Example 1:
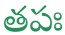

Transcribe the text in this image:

తపః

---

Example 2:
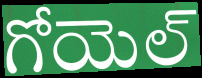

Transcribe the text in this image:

గోయెల్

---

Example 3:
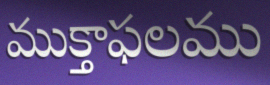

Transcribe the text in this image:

ముక్తాఫలము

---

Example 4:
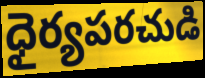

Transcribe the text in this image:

ధైర్యపరచుడి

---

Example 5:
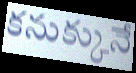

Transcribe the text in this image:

కనుక్కునే